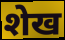
शेख